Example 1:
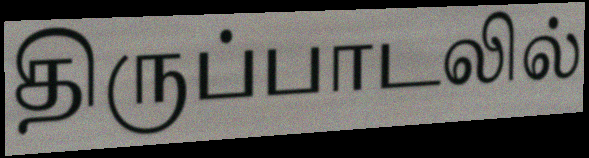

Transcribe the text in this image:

திருப்பாடலில்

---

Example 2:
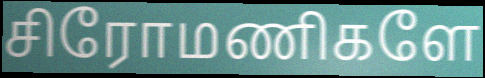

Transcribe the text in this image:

சிரோமணிகளே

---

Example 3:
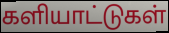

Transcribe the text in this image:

களியாட்டுகள்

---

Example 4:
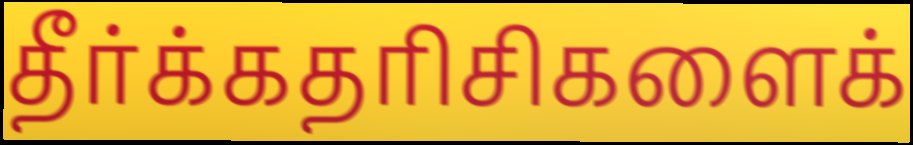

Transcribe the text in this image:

தீர்க்கதரிசிகளைக்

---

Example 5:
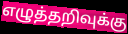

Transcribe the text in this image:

எழுத்தறிவுக்கு